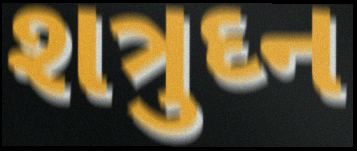
શત્રુઘ્ન